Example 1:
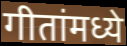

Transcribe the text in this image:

गीतांमध्ये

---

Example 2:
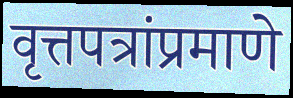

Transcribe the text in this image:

वृत्तपत्रांप्रमाणे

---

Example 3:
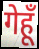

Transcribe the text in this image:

गेहूँ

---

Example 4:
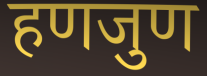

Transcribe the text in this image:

हणजुण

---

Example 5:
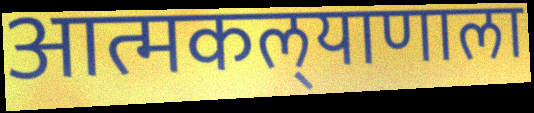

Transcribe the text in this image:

आत्मकल्याणाला